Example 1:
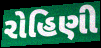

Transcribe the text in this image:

રોહિણી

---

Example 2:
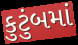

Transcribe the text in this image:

કુટુંબમાં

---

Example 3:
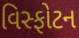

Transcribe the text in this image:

વિસ્ફોટન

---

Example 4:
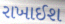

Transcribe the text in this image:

રાખાઈશ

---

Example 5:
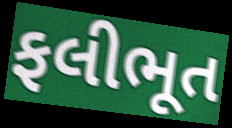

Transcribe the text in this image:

ફલીભૂત